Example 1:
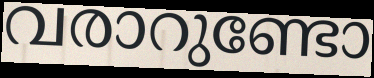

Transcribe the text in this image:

വരാറുണ്ടോ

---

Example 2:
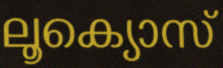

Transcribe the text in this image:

ലൂക്യൊസ്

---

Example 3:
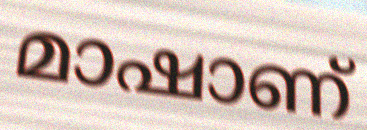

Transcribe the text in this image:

മാഷാണ്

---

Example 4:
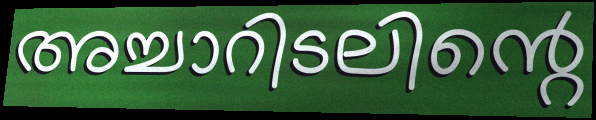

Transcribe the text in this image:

അച്ചാറിടലിന്റെ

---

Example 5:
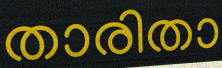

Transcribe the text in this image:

താരിതാ